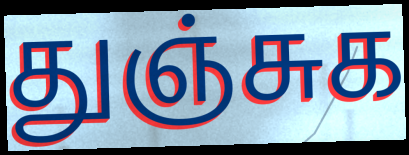
துஞ்சுக